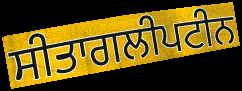
ਸੀਤਾਗਲੀਪਟੀਨ